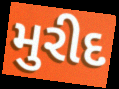
મુરીદ